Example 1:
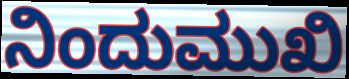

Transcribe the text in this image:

ನಿಂದುಮುಖಿ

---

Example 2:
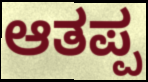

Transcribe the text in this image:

ಆತಪ್ಪ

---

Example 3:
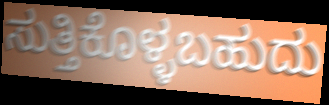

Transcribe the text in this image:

ಸುತ್ತಿಕೊಳ್ಳಬಹುದು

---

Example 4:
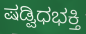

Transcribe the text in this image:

ಷಡ್ವಿಧಭಕ್ತಿ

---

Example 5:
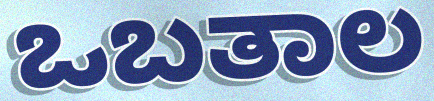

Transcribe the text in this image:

ಒಬತಾಲ